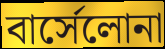
বার্সেলোনা